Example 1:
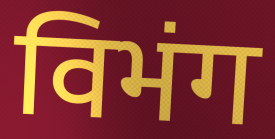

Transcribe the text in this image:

विभंग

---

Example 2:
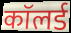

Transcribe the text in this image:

कॉलर्ड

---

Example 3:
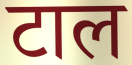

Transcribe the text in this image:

टाल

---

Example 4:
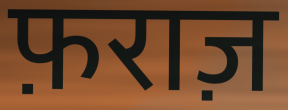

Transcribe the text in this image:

फ़राज़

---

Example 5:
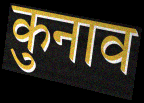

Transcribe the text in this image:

कुनाव